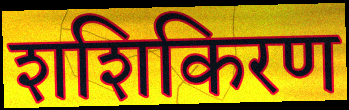
शशिकिरण